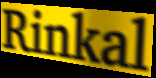
Rinkal